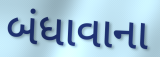
બંધાવાના